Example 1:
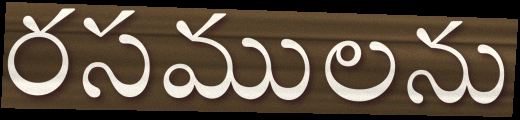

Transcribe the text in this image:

రసములను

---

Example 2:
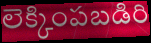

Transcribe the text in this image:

లెక్కింపబడిరి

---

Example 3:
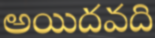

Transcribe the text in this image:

అయిదవది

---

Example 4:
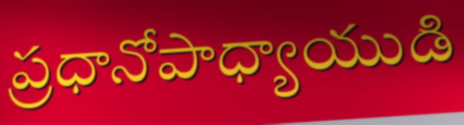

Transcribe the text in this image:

ప్రధానోపాధ్యాయుడి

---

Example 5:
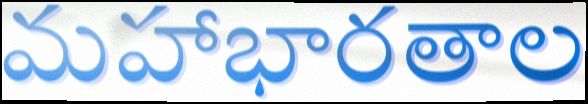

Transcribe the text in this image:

మహాభారతాల